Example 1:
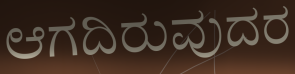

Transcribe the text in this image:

ಆಗದಿರುವುದರ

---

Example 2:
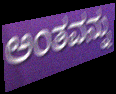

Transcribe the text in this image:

ಅಂತವನ್ನು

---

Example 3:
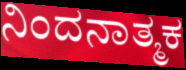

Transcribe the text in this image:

ನಿಂದನಾತ್ಮಕ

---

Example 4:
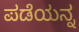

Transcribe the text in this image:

ಪಡೆಯನ್ನ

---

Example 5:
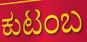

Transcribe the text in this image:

ಕುಟಂಬ